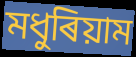
মধুৰিয়াম